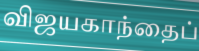
விஜயகாந்தைப்